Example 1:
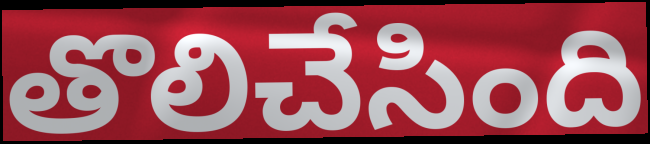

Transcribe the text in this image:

తొలిచేసింది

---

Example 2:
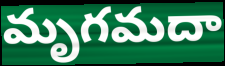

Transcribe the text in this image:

మృగమదా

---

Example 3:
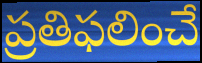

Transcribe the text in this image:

ప్రతిఫలించే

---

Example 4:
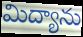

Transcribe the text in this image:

మిద్యాను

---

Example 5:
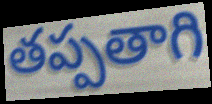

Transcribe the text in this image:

తప్పతాగి